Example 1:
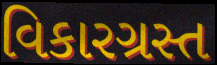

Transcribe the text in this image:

વિકારગ્રસ્ત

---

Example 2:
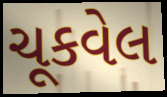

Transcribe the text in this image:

ચૂકવેલ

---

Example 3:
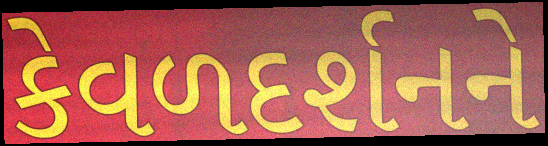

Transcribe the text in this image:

કેવળદર્શનને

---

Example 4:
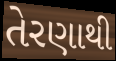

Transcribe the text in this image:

તેરણાથી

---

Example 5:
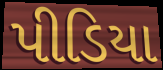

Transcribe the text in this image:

પીડિયા